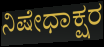
ನಿಷೇಧಾಕ್ಷರ